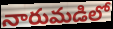
నారుమడిలో